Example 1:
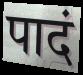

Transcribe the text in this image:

पादं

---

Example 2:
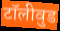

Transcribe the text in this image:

टॉलीवुड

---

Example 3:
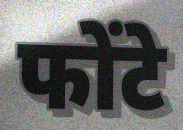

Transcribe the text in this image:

फोंटे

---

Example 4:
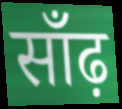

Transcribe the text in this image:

साँढ़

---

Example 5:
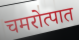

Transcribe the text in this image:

चमरोत्पात